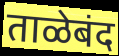
ताळेबंद